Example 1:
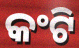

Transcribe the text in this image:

କଂଟି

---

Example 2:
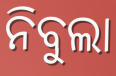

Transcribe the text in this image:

ନିବୁଲା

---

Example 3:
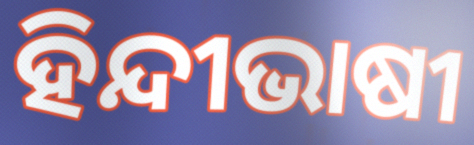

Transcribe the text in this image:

ହିନ୍ଦୀଭାଷୀ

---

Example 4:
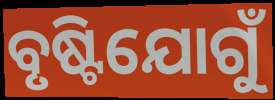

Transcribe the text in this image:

ବୃଷ୍ଟିଯୋଗୁଁ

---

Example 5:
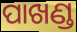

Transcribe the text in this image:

ପାଖଣ୍ଡ